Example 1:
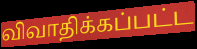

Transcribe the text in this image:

விவாதிக்கப்பட்ட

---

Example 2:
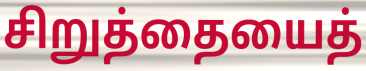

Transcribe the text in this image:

சிறுத்தையைத்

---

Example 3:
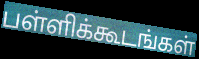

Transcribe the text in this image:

பள்ளிக்கூடங்கள்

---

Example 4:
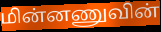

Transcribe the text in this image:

மின்னணுவின்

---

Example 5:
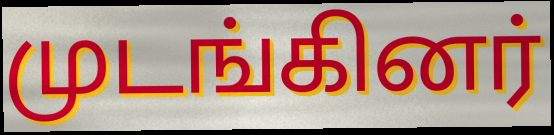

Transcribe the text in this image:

முடங்கினர்